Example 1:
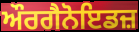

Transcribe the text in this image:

ਔਰਗੈਨੋਇਡਜ਼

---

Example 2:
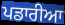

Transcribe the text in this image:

ਪਡਾਰੀਆ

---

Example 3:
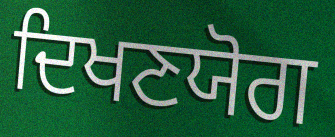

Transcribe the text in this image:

ਦਿਖਣਯੋਗ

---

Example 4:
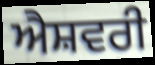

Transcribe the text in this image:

ਐਸ਼ਵਰੀ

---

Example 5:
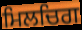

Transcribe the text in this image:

ਮਿਲਚਿਗ